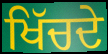
ਖਿੱਚਦੇ